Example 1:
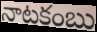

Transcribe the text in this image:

నాటకంబు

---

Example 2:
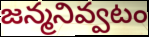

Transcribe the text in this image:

జన్మనివ్వటం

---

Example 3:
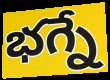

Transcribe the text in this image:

భగ్నే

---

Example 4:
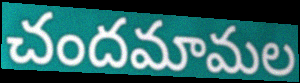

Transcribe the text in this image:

చందమామల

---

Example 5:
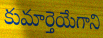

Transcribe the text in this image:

కుమార్తెయేగాని